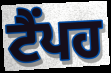
ਟੈਂਪਹ